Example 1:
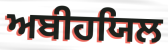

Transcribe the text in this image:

ਅਬੀਹਯਿਲ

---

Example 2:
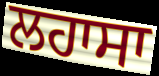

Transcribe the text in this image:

ਲਹਾਸਾ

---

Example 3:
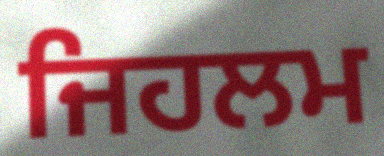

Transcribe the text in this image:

ਜਿਹਲਮ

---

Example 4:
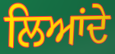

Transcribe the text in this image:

ਲਿਆਂਦੇ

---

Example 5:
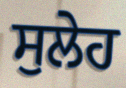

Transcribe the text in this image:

ਸੁਲੇਹ